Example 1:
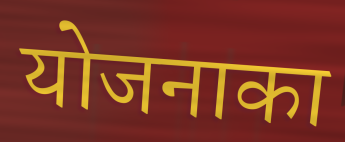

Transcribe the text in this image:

योजनाका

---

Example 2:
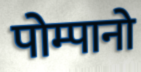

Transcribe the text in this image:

पोम्पानो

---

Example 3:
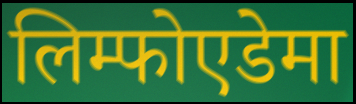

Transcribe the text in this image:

लिम्फोएडेमा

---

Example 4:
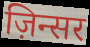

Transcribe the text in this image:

ज़िन्सर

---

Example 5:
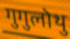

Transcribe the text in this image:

गुगुलोथु